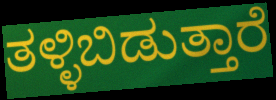
ತಳ್ಳಿಬಿಡುತ್ತಾರೆ